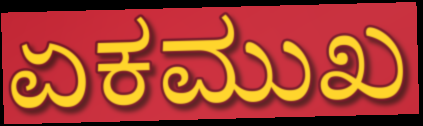
ಏಕಮುಖ